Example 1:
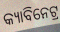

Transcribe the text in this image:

କ୍ୟାବିନେଟ୍ର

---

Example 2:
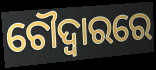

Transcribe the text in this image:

ଚୌଦ୍ୱାରରେ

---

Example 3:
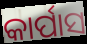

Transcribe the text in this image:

କାର୍ପାସ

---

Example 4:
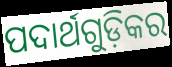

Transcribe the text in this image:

ପଦାର୍ଥଗୁଡ଼ିକର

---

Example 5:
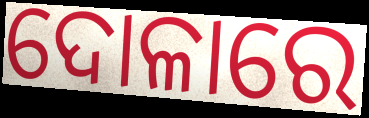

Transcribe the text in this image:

ଦୋଳାରେ